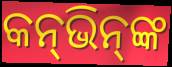
କନ୍‌ଭିନ୍‌ଙ୍କ